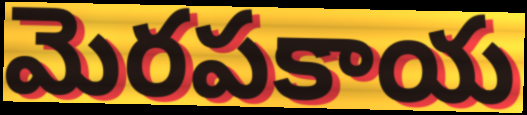
మెరపకాయ